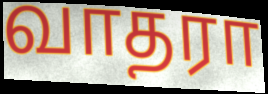
வாதரா